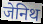
जेनिथ